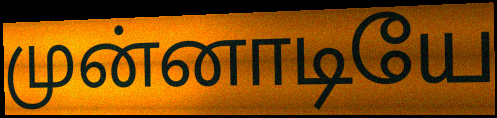
முன்னாடியே